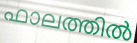
ഫാലത്തിൽ